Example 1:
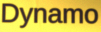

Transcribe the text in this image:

Dynamo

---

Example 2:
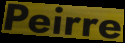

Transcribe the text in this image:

Peirre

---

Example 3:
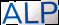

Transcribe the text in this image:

ALP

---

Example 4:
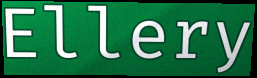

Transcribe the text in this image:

Ellery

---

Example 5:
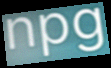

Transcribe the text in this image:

npg